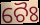
ଚୈଃ